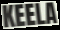
KEELA